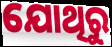
ଯୋଥିରୁ